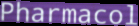
Pharmacol